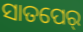
ସାତପେର୍